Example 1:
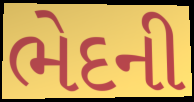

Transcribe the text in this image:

ભેદની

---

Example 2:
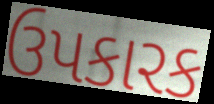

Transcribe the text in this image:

ઉપકારક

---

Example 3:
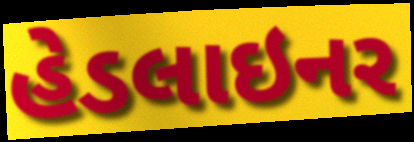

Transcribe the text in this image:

હેડલાઇનર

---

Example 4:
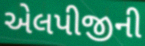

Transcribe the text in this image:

એલપીજીની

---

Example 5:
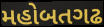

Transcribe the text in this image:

મહોબતગઢ